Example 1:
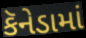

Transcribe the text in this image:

કૅનેડામાં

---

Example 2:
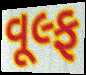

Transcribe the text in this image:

વૂલ્ફ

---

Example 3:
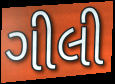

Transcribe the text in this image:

ગીલી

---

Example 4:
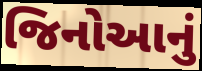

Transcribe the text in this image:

જિનોઆનું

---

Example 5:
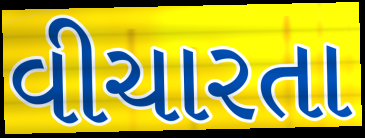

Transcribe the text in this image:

વીચારતા